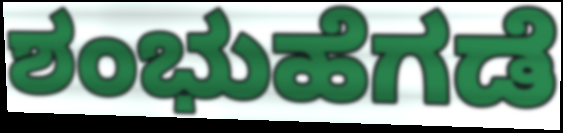
ಶಂಭುಹೆಗಡೆ